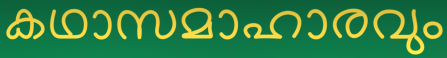
കഥാസമാഹാരവും